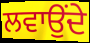
ਲਵਾਉਂਦੇ